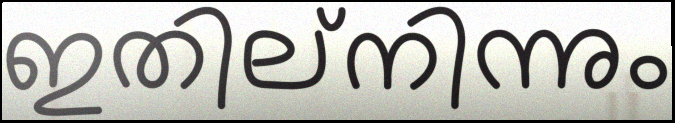
ഇതില്നിന്നും